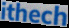
ithech